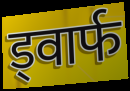
ड्वार्फ